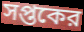
সপ্তকের